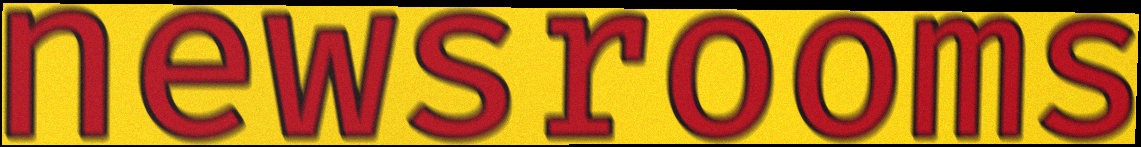
newsrooms